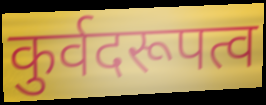
कुर्वदरूपत्व